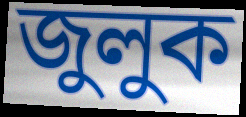
জুলুক